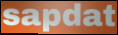
sapdat